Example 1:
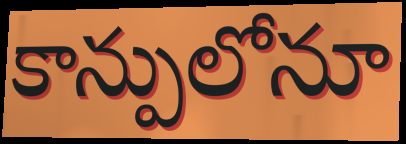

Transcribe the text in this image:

కాన్పులోనూ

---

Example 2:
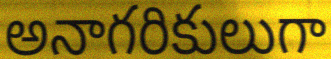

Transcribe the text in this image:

అనాగరికులుగా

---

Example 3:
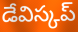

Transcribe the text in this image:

డేవిస్కప్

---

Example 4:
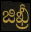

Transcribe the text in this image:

జిఖ్రీ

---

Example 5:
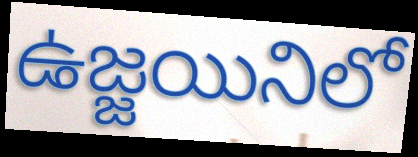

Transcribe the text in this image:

ఉజ్జయినిలో